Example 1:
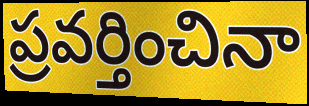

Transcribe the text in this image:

ప్రవర్తించినా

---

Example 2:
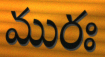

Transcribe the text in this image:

మురః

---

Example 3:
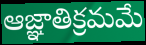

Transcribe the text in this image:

ఆజ్ఞాతిక్రమమే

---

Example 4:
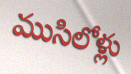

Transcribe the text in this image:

ముసిలోళ్లు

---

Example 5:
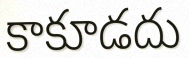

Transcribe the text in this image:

కాకూడదు